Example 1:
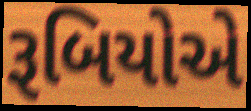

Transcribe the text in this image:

રૂબિયોએ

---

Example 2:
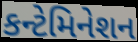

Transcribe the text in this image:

કન્ટેમિનેશન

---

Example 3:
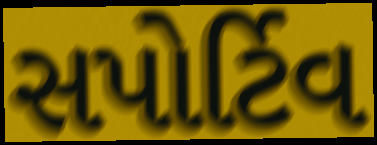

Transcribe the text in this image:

સપોર્ટિવ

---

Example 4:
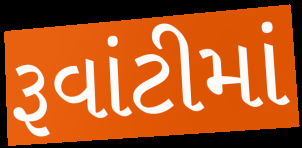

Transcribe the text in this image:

રૂવાંટીમાં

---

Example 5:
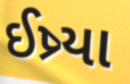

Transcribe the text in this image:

ઈષ્ર્યા